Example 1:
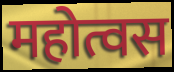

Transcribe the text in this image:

महोत्वस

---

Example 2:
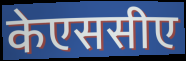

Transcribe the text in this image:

केएससीए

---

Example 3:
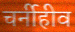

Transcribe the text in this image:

चर्नीहीव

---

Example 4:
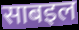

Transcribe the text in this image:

साबइल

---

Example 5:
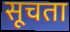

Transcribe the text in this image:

सूचता